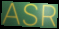
ASR